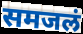
समजलं